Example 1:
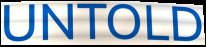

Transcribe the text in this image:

UNTOLD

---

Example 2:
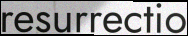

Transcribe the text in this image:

resurrectio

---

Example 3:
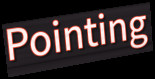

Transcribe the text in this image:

Pointing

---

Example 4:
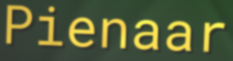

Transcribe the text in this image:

Pienaar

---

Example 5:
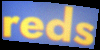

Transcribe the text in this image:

reds